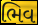
ભિવ